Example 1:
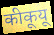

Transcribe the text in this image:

कीकूयू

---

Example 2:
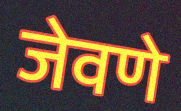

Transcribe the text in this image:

जेवणे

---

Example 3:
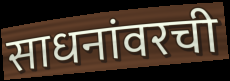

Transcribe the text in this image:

साधनांवरची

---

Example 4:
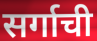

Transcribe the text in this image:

सर्गाची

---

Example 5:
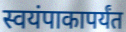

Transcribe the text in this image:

स्वयंपाकापर्यंत